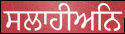
ਸਲਾਹੀਅਨਿ